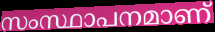
സംസ്ഥാപനമാണ്